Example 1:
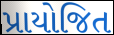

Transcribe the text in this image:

પ્રાયોજિત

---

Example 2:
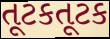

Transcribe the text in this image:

તૂટકતૂટક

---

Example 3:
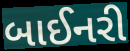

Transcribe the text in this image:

બાઈનરી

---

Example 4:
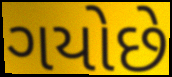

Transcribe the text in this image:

ગયોછે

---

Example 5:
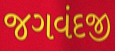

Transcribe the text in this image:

જગવંદજી